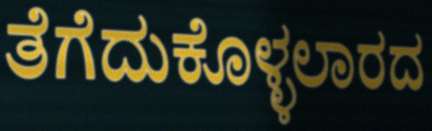
ತೆಗೆದುಕೊಳ್ಳಲಾರದ